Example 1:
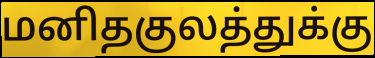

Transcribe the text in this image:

மனிதகுலத்துக்கு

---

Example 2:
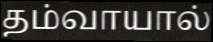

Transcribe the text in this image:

தம்வாயால்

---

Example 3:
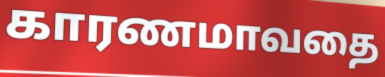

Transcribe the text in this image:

காரணமாவதை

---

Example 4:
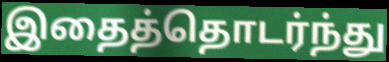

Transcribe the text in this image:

இதைத்தொடர்ந்து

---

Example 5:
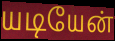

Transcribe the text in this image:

யடியேன்